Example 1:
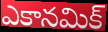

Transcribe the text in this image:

ఎకానమిక్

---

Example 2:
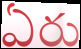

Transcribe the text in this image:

ఏరు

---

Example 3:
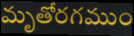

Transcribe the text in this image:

మృతోరగముం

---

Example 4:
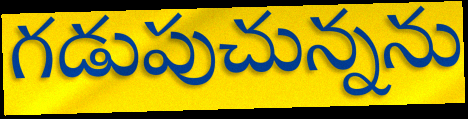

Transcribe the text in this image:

గడుపుచున్నను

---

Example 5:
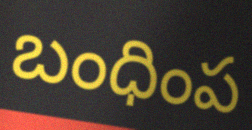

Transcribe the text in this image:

బంధింప